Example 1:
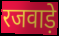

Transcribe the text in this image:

रजवाड़े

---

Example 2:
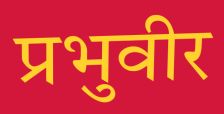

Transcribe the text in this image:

प्रभुवीर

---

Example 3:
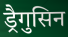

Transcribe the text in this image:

ड्रैगुसिन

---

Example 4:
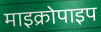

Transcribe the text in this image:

माइक्रोपाइप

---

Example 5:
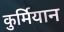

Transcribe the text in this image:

कुर्मियान